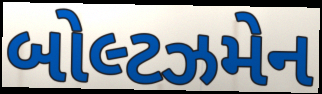
બોલ્ટઝમેન